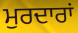
ਮੁਰਦਾਰਾਂ